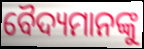
ବୈଦ୍ୟମାନଙ୍କୁ